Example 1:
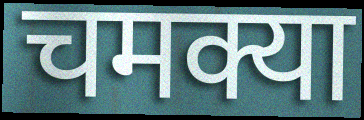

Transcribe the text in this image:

चमक्या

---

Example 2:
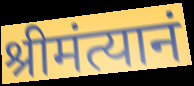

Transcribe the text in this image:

श्रीमंत्यानं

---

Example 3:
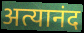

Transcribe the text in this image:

अत्यानंद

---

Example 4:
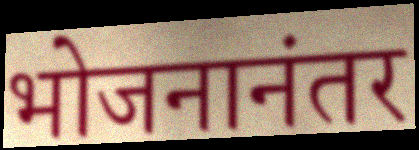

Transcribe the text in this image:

भोजनानंतर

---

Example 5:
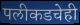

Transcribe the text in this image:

पलीकडचेही